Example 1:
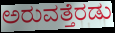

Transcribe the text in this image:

ಅರುವತ್ತೆರಡು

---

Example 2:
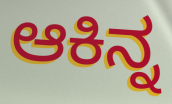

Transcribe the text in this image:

ಆಕಿನ್ನ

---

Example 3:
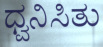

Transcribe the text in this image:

ಧ್ವನಿಸಿತು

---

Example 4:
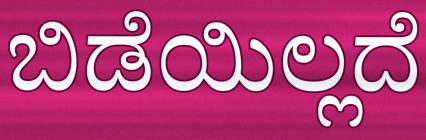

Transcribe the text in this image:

ಬಿಡೆಯಿಲ್ಲದೆ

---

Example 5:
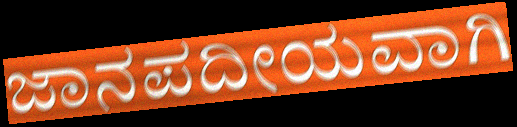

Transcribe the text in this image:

ಜಾನಪದೀಯವಾಗಿ